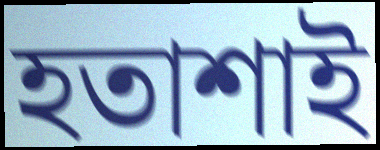
হতাশাই